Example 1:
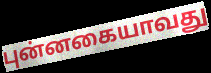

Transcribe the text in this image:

புன்னகையாவது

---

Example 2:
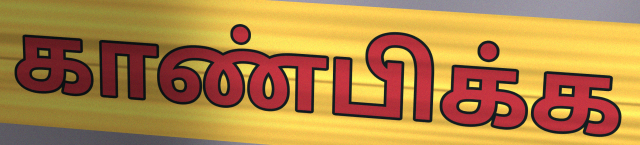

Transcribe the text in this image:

காண்பிக்க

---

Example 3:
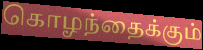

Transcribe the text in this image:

கொழந்தைக்கும்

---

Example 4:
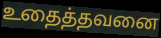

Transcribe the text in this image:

உதைத்தவனை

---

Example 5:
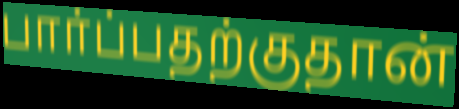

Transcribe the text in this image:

பார்ப்பதற்குதான்